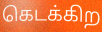
கெடக்கிற